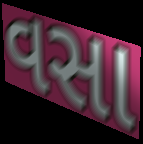
વસા